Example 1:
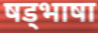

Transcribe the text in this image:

षड्भाषा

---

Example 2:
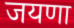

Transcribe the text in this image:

जयणा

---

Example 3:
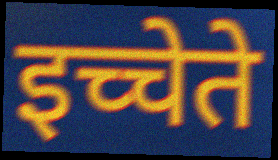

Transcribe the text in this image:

इच्चेते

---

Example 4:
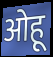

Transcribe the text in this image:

ओहू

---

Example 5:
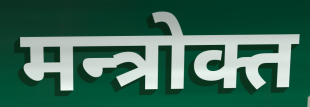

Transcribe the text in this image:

मन्त्रोक्त